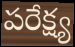
పరేక్ష్య